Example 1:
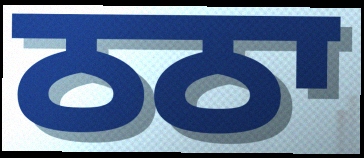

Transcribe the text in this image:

ਠਠਾ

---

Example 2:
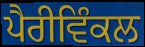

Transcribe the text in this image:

ਪੈਰੀਵਿੰਕਲ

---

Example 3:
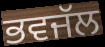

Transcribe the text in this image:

ਭਵਜੱਲ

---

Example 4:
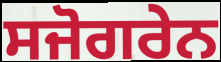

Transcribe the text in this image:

ਸਜੋਗਰੇਨ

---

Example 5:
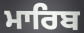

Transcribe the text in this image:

ਮਾਰਿਬ